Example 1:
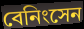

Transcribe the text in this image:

বেনিংসেন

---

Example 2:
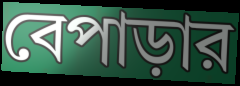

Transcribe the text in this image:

বেপাড়ার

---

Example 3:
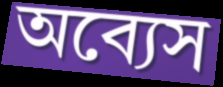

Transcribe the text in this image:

অব্যেস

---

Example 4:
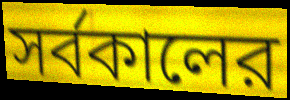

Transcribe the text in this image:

সর্বকালের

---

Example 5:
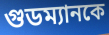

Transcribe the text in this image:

গুডম্যানকে